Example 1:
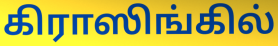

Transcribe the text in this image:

கிராஸிங்கில்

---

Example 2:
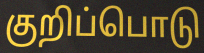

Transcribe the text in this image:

குறிப்பொடு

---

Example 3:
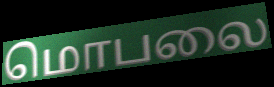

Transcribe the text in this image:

மொபலை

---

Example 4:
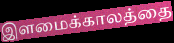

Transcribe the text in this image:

இளமைக்காலத்தை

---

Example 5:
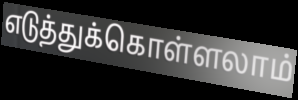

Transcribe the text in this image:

எடுத்துக்கொள்ளலாம்